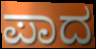
ಪಾದ